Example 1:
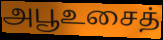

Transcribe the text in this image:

அபூஉசைத்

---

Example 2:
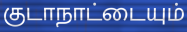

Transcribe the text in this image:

குடாநாட்டையும்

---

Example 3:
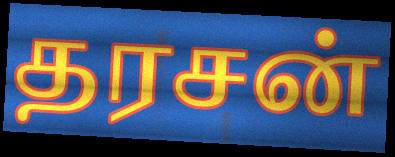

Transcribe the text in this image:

தரசன்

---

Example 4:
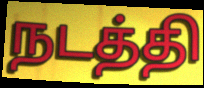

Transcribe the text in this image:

நடத்தி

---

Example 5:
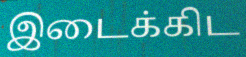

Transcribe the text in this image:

இடைக்கிட